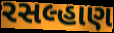
રસલ્હાણ